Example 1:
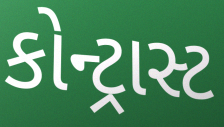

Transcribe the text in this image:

કોન્ટ્રાસ્ટ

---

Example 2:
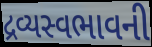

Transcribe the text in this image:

દ્રવ્યસ્વભાવની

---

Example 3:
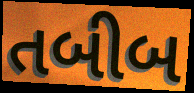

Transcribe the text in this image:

તબીબ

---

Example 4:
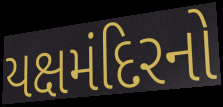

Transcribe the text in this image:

યક્ષમંદિરનો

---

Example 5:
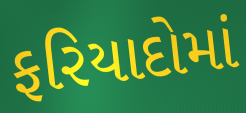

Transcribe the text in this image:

ફરિયાદોમાં